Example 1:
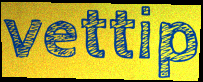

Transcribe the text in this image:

vettip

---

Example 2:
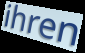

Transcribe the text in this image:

ihren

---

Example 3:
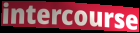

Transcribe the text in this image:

intercourse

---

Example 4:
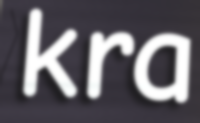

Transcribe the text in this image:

kra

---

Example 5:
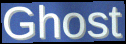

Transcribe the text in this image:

Ghost